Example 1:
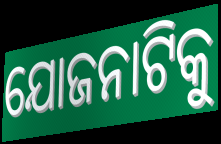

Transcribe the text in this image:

ଯୋଜନାଟିକୁ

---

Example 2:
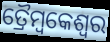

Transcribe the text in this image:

ତ୍ରୈମ୍ବକେଶ୍ୱର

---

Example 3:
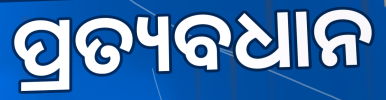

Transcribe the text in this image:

ପ୍ରତ୍ୟବଧାନ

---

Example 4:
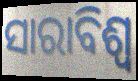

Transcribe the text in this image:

ସାରାବିଶ୍ବ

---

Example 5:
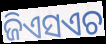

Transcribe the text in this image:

ଜିଏସଏଚ